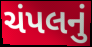
ચંપલનું